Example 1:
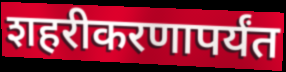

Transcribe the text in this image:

शहरीकरणापर्यंत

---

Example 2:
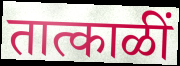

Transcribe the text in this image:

तात्काळीं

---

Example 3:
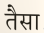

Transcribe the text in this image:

तैसा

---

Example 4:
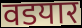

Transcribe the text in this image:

वडयार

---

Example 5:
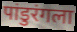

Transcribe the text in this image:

पांडुरंगला